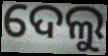
ଦେଲୁ